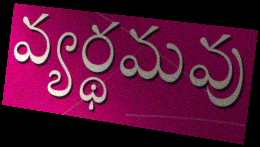
వ్యర్థమవు